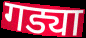
गड्या